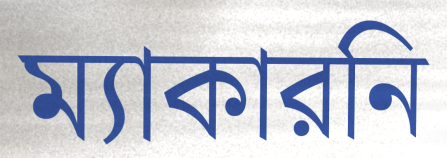
ম্যাকারনি